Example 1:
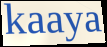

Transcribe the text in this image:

kaaya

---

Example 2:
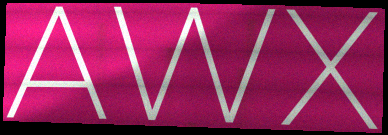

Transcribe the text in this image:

AWX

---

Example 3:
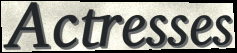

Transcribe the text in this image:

Actresses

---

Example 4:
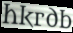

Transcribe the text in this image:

hkrdb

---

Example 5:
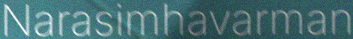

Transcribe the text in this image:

Narasimhavarman